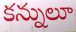
కన్నులూ